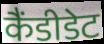
कैंडीडेट